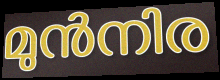
മുൻനിര